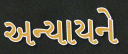
અન્યાયને